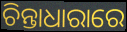
ଚିନ୍ତାଧାରାରେ